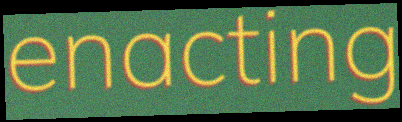
enacting